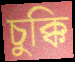
চুক্কি